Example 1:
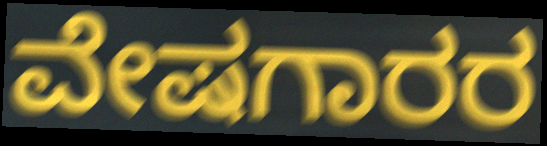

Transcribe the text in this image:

ವೇಷಗಾರರ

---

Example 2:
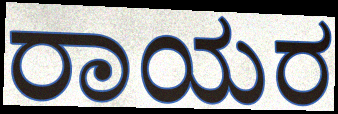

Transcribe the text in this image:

ರಾಯರ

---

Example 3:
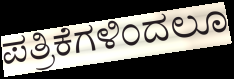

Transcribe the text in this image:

ಪತ್ರಿಕೆಗಳಿಂದಲೂ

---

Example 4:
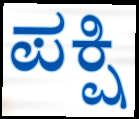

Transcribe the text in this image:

ಪಕ್ಷಿ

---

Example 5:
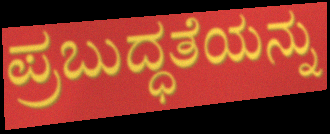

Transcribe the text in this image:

ಪ್ರಬುದ್ಧತೆಯನ್ನು